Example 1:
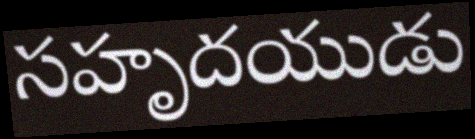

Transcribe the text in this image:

సహృదయుడు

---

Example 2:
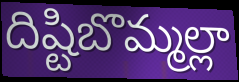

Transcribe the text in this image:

దిష్టిబొమ్మల్లా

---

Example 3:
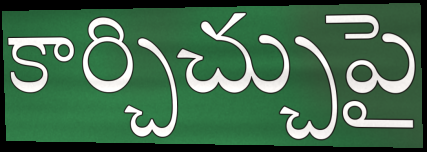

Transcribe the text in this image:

కార్చిచ్చుపై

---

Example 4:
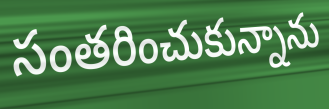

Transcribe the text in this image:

సంతరించుకున్నాను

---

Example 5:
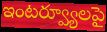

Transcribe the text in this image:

ఇంటర్వ్యూలపై